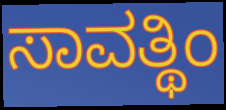
ಸಾವತ್ಥಿಂ